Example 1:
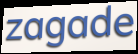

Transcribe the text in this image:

zagade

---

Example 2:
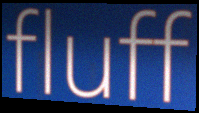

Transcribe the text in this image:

fluff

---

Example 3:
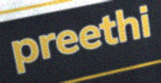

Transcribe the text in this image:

preethi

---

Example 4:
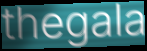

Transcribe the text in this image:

thegala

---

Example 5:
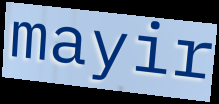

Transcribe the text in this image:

mayir